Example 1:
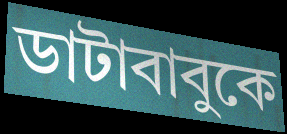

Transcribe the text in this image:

ডাটাবাবুকে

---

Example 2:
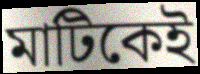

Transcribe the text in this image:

মাটিকেই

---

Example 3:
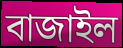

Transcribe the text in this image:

বাজাইল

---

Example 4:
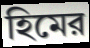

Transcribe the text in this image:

হিমের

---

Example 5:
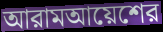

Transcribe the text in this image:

আরামআয়েশের